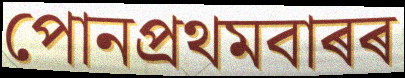
পোনপ্ৰথমবাৰৰ